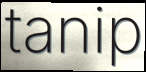
tanip